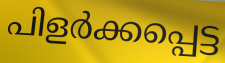
പിളർക്കപ്പെട്ട